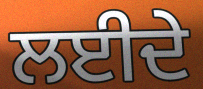
ਲਈਦੇ